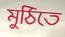
মুঠিতে